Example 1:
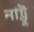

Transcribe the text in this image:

নাট্টু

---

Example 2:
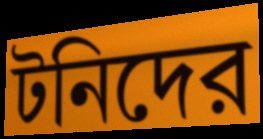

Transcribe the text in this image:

টনিদের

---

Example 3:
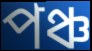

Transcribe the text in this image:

পঞ্চ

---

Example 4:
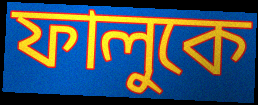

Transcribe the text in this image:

ফালুকে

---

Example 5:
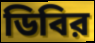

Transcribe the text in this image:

ডিবির